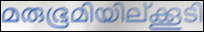
മരുഭൂമിയില്ക്കൂടി